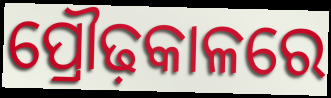
ପ୍ରୌଢ଼କାଳରେ